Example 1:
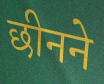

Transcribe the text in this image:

छीनने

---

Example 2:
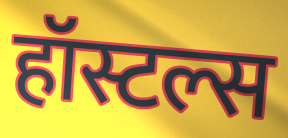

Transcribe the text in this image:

हॉस्टल्स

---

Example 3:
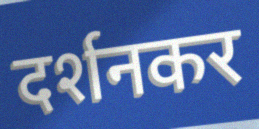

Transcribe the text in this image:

दर्शनकर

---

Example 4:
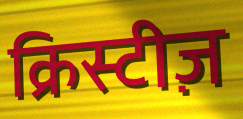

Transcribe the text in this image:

क्रिस्टीज़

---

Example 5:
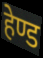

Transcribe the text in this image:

हेण्ड